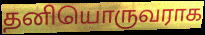
தனியொருவராக